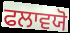
ਫਲਾਵਯੋ